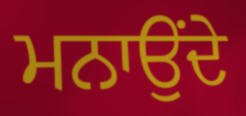
ਮਨਾਉਂਦੇ